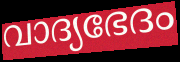
വാദ്യഭേദം